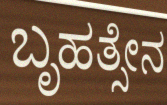
ಬೃಹತ್ಸೇನ